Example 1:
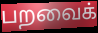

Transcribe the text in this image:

பறவைக்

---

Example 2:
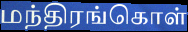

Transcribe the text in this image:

மந்திரங்கொள்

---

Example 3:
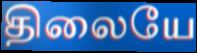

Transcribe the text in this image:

திலையே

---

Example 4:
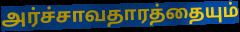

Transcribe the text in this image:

அர்ச்சாவதாரத்தையும்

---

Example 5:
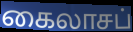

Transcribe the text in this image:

கைலாசப்